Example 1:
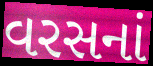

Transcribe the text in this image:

વરસનાં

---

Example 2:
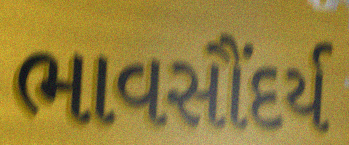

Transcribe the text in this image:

ભાવસૌંદર્ય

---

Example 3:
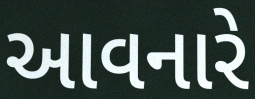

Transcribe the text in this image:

આવનારે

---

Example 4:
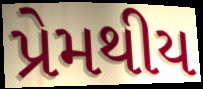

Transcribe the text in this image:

પ્રેમથીય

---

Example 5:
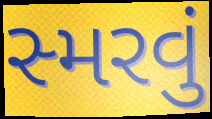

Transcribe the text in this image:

સ્મરવું